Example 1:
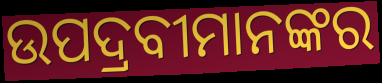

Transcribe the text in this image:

ଉପଦ୍ରବୀମାନଙ୍କର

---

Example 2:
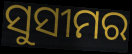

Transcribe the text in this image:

ସୁସୀମର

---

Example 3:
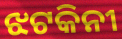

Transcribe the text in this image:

ଝଟକିନୀ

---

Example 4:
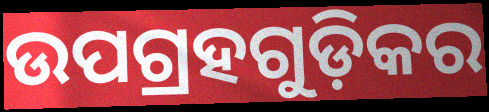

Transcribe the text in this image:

ଉପଗ୍ରହଗୁଡ଼ିକର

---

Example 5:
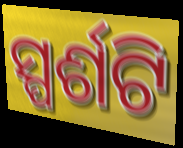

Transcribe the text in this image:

ସ୍ପର୍ଶଟି